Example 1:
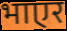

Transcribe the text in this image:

भाएर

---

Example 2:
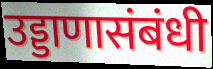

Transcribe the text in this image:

उड्डाणासंबंधी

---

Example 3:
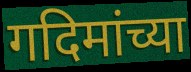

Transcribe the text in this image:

गदिमांच्या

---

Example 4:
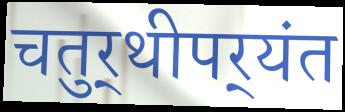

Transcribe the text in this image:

चतुर्थीपर्यंत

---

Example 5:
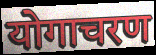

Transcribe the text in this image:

योगाचरण